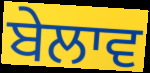
ਬੇਲਾਵ